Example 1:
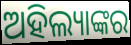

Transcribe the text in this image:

ଅହିଲ୍ୟାଙ୍କର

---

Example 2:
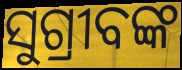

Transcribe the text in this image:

ସୁଗ୍ରୀବଙ୍କ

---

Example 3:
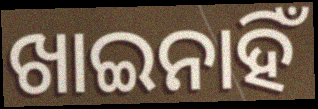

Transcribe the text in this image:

ଖାଇନାହିଁ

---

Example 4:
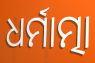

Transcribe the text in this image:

ଧର୍ମାତ୍ମା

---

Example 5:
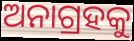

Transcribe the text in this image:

ଅନାଗ୍ରହକୁ